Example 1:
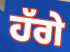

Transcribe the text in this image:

ਹੱਗੇ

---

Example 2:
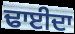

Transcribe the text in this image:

ਢਾਈਦਾ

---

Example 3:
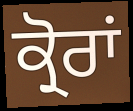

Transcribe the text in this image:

ਕ੍ਰੋਰਾਂ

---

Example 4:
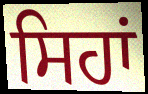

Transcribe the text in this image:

ਸਿਹਾਂ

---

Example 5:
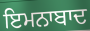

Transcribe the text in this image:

ਇਮਨਾਬਾਦ